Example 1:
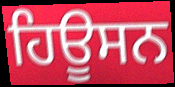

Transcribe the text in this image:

ਹਿਊਸਨ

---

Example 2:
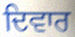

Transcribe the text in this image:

ਦਿਵਾਰ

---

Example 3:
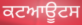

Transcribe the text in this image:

ਕਟਆਊਟਸ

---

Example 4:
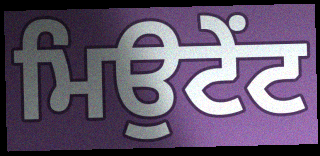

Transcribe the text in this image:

ਮਿਉਟੇਂਟ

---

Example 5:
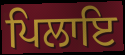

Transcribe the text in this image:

ਪਿਲਾਇ